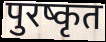
पुरष्कृत